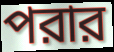
পরার